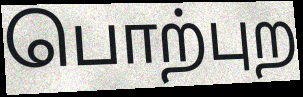
பொற்புற